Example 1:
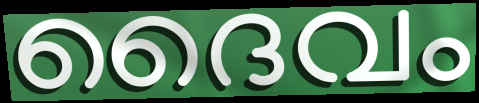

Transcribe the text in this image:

ദൈവം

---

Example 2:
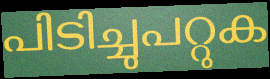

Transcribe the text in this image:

പിടിച്ചുപറ്റുക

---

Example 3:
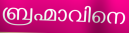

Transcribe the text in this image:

ബ്രഹ്മാവിനെ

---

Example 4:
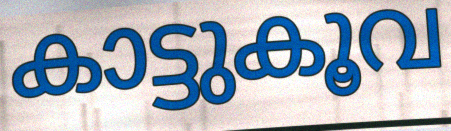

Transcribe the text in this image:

കാട്ടുകൂവ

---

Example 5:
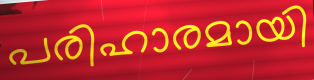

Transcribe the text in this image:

പരിഹാരമായി